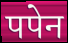
पपेन